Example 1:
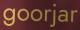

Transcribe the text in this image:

goorjar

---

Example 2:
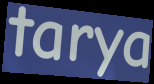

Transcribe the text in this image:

tarya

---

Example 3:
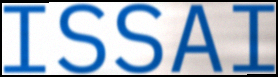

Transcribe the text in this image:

ISSAI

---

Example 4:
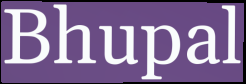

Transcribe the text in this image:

Bhupal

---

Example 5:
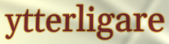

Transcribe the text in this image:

ytterligare